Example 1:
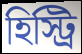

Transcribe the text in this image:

হিস্ট্রি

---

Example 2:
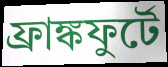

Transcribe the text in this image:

ফ্রাঙ্কফুর্টে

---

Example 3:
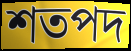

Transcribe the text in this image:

শতপদ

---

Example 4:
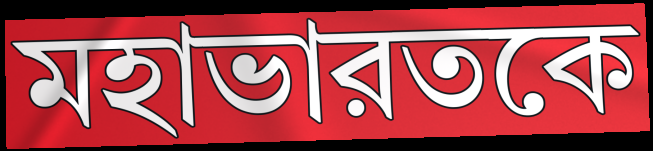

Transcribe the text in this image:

মহাভারতকে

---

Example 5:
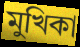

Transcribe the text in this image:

মুখিকা